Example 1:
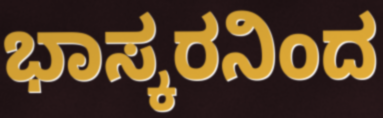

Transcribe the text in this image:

ಭಾಸ್ಕರನಿಂದ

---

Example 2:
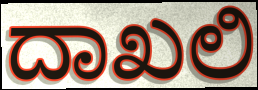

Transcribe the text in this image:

ದಾಖಲಿ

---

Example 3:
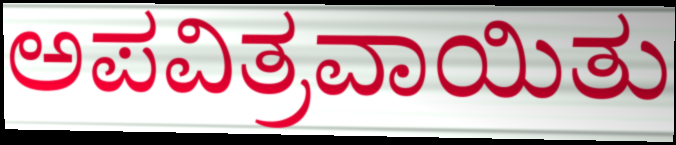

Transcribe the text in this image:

ಅಪವಿತ್ರವಾಯಿತು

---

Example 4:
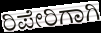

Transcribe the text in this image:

ರಿಪೇರಿಗಾಗಿ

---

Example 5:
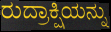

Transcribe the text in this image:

ರುದ್ರಾಕ್ಷಿಯನ್ನು